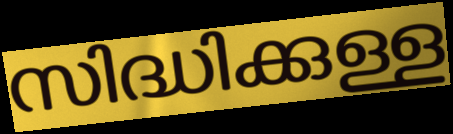
സിദ്ധിക്കുള്ള